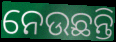
ନେଉଛନ୍ତି